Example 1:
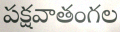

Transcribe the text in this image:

పక్షవాతంగల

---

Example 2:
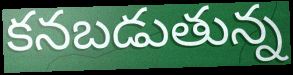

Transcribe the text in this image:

కనబడుతున్న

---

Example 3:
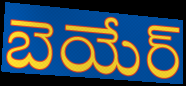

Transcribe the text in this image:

బెయేర్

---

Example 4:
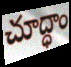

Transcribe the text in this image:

చూద్ధాం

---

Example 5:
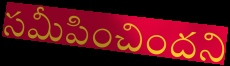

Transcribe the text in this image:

సమీపించిందని